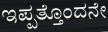
ಇಪ್ಪತ್ತೊಂದನೇ